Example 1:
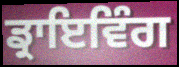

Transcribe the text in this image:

ਡ੍ਰਾਇਵਿੰਗ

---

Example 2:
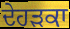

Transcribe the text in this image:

ਦੇਹੜਕਾ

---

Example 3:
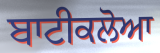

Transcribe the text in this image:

ਬਾਟੀਕਲੋਆ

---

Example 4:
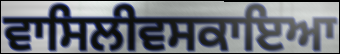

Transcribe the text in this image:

ਵਾਸਿਲੀਵਸਕਾਇਆ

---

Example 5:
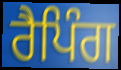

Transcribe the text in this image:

ਰੈਪਿੰਗ